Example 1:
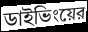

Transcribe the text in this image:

ডাইভিংয়ের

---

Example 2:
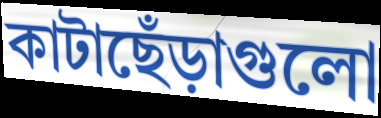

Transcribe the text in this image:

কাটাছেঁড়াগুলো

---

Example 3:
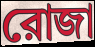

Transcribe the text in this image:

রোজা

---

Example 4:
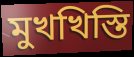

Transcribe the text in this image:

মুখখিস্তি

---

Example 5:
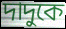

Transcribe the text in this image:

দাদুকে